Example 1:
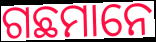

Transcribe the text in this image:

ଗଛମାନେ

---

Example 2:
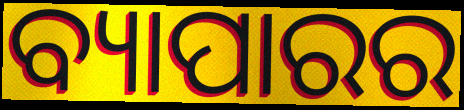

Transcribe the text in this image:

ବ୍ୟାପାରର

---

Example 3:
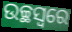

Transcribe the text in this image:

ଉଚ୍ଛସ୍ୱରେ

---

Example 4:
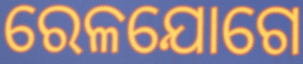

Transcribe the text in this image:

ରେଳଯୋଗେ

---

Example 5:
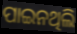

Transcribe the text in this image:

ପାଇନଥିଲି